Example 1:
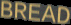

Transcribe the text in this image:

BREAD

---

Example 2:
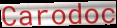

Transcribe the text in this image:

Carodoc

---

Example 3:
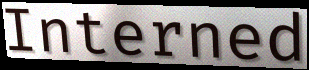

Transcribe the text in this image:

Interned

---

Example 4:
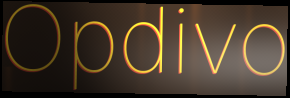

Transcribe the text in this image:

Opdivo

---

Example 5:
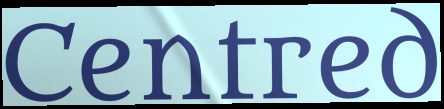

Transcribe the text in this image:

Centred